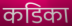
कडिका